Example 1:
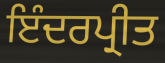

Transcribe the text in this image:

ਇੰਦਰਪ੍ਰੀਤ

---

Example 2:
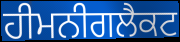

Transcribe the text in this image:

ਹੀਮਨੀਗਲੈਕਟ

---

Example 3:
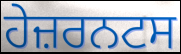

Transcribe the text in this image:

ਹੇਜ਼ਰਨਟਸ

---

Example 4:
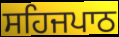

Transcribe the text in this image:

ਸਹਿਜਪਾਠ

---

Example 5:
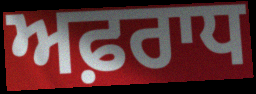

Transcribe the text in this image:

ਅਫ਼ਰਾਧ